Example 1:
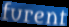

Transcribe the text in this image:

furent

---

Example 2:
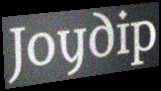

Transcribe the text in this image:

Joydip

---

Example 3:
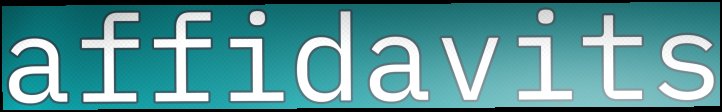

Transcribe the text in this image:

affidavits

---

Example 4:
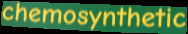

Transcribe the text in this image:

chemosynthetic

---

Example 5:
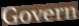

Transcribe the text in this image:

Govern